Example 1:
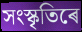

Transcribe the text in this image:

সংস্কৃতিৰে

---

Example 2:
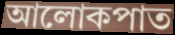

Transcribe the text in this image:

আলোকপাত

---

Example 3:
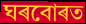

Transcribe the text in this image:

ঘৰবোৰত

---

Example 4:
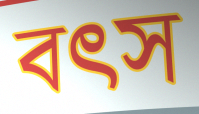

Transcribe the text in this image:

বৎস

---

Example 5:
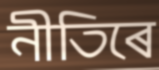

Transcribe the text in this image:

নীতিৰে